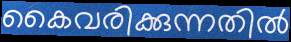
കൈവരിക്കുന്നതിൽ